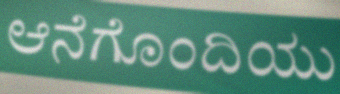
ಆನೆಗೊಂದಿಯು